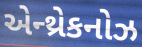
એન્થ્રેકનોઝ